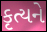
કૃત્યને